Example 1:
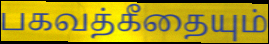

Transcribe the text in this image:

பகவத்கீதையும்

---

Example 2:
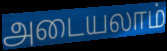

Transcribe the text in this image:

அடையலாம்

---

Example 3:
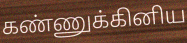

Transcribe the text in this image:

கண்ணுக்கினிய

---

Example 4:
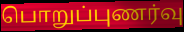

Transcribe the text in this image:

பொறுப்புணர்வு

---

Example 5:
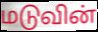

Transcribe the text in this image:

மடுவின்